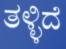
ತಳ್ಳಿದೆ